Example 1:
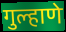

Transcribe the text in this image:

गुल्हाणे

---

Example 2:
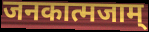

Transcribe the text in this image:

जनकात्मजाम्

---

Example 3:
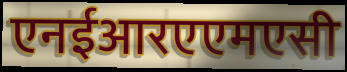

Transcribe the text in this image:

एनईआरएएमएसी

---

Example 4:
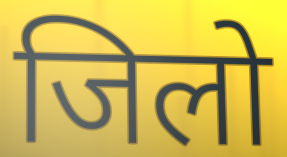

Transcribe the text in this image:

जिलो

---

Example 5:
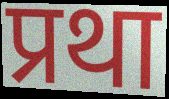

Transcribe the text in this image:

प्रथा